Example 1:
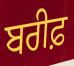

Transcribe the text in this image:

ਬਰੀਫ਼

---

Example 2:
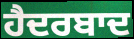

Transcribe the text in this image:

ਹੈਦਰਬਾਦ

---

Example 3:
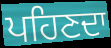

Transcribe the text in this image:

ਪਹਿਣਦਾ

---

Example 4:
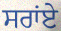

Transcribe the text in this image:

ਸਰਾਂਏ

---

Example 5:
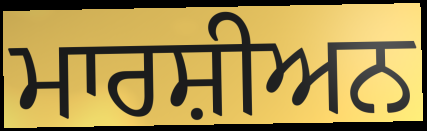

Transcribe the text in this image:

ਮਾਰਸ਼ੀਅਨ